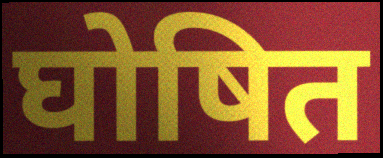
घोषित